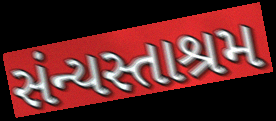
સંન્યસ્તાશ્રમ